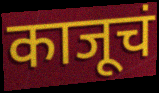
काजूचं